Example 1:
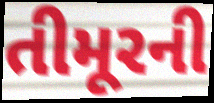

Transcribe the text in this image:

તીમૂરની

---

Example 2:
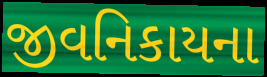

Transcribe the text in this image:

જીવનિકાયના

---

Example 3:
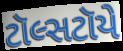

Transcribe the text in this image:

ટૉલ્સટૉયે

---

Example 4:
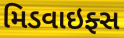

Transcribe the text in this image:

મિડવાઇફ્સ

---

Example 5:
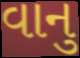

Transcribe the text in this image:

વાનુ